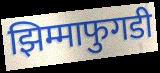
झिम्माफुगडी